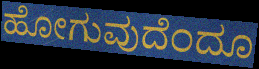
ಹೋಗುವುದೆಂದೂ